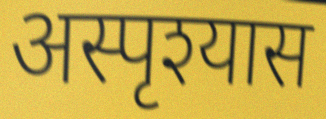
अस्पृश्यास